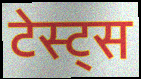
टेस्ट्स